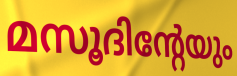
മസൂദിന്റേയും